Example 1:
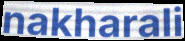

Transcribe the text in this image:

nakharali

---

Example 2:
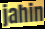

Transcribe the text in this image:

jahin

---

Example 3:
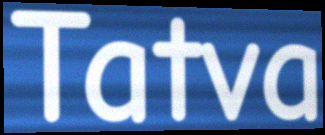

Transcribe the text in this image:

Tatva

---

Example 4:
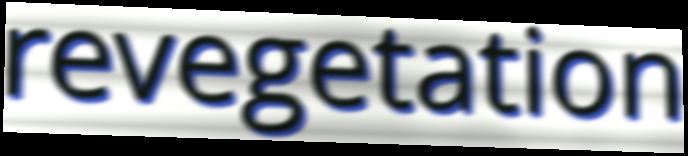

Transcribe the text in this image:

revegetation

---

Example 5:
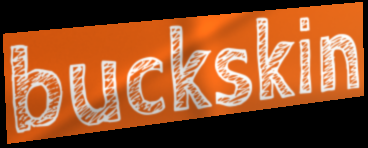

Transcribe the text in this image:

buckskin